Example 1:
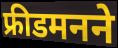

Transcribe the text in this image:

फ्रीडमनने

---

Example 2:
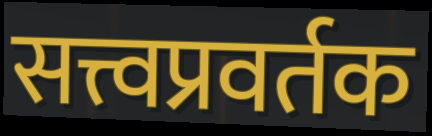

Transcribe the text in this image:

सत्त्वप्रवर्तक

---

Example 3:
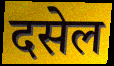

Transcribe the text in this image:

दसेल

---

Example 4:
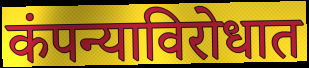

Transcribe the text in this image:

कंपन्याविरोधात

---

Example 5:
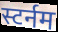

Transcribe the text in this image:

स्टर्नम